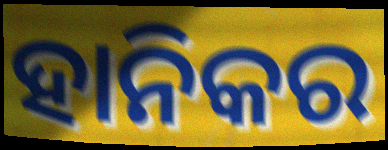
ହାନିକର